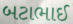
બટાભાઈ